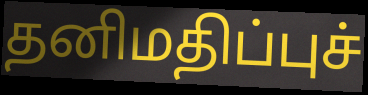
தனிமதிப்புச்